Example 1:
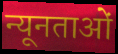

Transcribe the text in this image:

न्यूनताओं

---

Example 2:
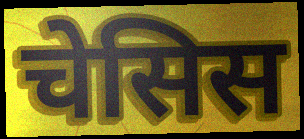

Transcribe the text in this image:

चेसिस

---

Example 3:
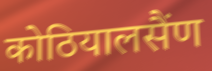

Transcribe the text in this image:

कोठियालसैंण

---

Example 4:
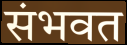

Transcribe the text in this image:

संभवत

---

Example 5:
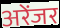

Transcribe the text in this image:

अरेंजर